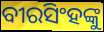
ବୀରସିଂହଙ୍କୁ